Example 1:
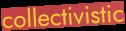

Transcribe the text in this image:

collectivistic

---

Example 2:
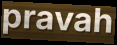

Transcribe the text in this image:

pravah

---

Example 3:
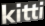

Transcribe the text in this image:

kitti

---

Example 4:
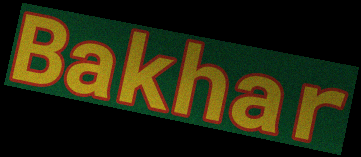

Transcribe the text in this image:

Bakhar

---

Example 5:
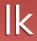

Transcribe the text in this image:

lk